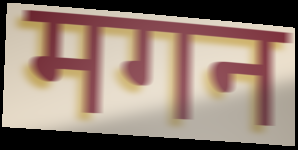
मगन